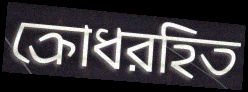
ক্রোধরহিত